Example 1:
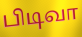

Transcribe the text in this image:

பிடிவா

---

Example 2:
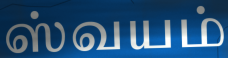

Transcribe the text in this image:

ஸ்வயம்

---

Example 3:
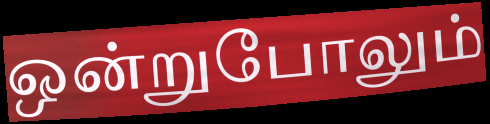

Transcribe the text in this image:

ஒன்றுபோலும்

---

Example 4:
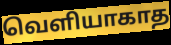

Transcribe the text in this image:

வெளியாகாத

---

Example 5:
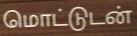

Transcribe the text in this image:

மொட்டுடன்